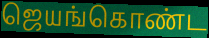
ஜெயங்கொண்ட